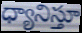
ధ్యానిస్తూ